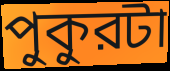
পুকুরটা